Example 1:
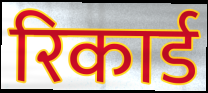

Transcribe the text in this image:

रिकार्ड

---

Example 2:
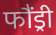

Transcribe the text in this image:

फौंड्री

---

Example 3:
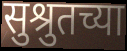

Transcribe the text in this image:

सुश्रुतच्या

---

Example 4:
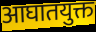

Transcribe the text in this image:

आघातयुक्त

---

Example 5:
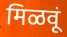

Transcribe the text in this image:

मिळवूं